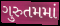
ગુરુતમમાં